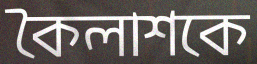
কৈলাশকে